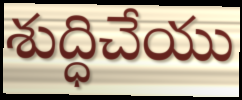
శుద్ధిచేయు